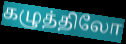
கழுத்திலோ